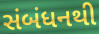
સંબંધનથી